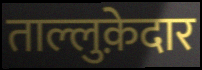
ताल्लुक़ेदार